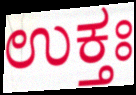
ಉಕ್ತಃ